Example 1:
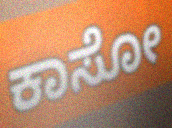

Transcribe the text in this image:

ಕಾಸೋ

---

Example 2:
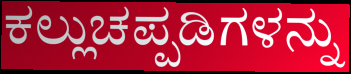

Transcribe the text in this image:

ಕಲ್ಲುಚಪ್ಪಡಿಗಳನ್ನು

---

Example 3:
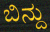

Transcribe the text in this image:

ಬಿನ್ದು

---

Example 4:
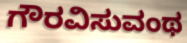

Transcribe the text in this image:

ಗೌರವಿಸುವಂಥ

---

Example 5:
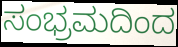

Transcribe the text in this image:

ಸಂಭ್ರಮದಿಂದ